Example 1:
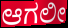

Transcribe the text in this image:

ಆಗಲೀ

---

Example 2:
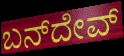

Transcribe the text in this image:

ಬನ್‌ದೇವ್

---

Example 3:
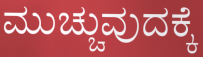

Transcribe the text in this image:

ಮುಚ್ಚುವುದಕ್ಕೆ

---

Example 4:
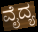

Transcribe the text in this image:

ವೈದ್ಯ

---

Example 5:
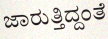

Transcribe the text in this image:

ಜಾರುತ್ತಿದ್ದಂತೆ